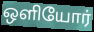
ஒளியோர்